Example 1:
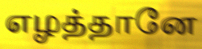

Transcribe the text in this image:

எழத்தானே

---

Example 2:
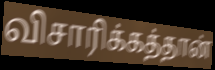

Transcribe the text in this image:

விசாரிக்கத்தான்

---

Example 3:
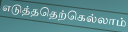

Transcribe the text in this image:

எடுத்ததெற்கெல்லாம்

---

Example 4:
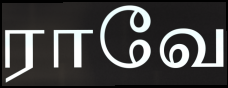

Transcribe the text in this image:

ராவே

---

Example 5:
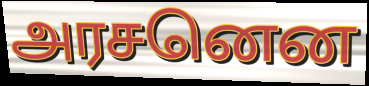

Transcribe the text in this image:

அரசனென